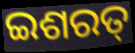
ଇଶରତ୍